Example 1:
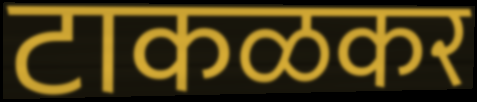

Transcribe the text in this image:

टाकळकर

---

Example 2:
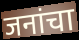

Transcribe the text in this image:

जनांचा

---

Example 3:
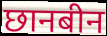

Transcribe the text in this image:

छानबीन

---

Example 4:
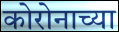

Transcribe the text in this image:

कोरोनाच्या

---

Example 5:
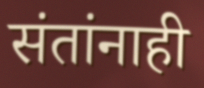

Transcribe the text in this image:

संतांनाही